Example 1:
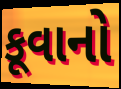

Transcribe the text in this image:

કૂવાનો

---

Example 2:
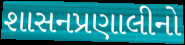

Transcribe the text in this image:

શાસનપ્રણાલીનો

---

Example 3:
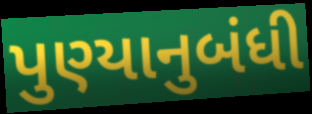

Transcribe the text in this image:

પુણ્યાનુબંધી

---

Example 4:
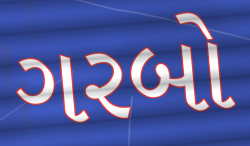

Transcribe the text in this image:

ગરબો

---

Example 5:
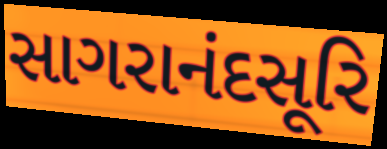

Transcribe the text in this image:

સાગરાનંદસૂરિ